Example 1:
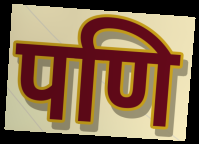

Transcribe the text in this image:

पणि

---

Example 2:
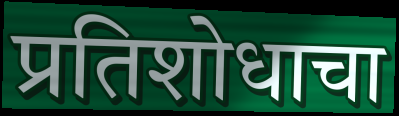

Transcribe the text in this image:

प्रतिशोधाचा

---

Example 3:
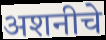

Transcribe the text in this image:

अशनीचे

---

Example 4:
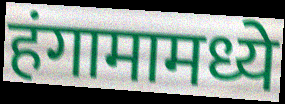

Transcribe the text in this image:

हंगामामध्ये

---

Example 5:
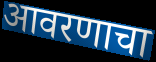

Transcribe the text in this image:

आवरणाचा